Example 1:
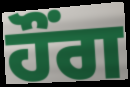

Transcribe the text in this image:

ਹੌਂਗ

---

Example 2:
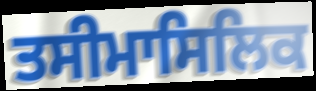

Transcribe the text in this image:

ਤਸੀਮਾਸਿਲਿਕ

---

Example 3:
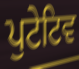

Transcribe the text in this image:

ਪੁਟੇਟਿਵ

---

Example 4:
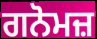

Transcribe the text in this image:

ਗਨੋਮਜ਼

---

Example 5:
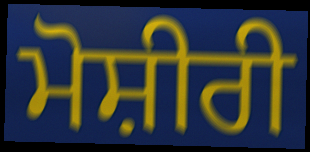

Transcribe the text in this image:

ਮੋਸ਼ੀਰੀ